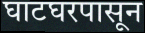
घाटघरपासून